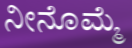
ನೀನೊಮ್ಮೆ